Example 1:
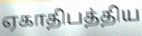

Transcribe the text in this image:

ஏகாதிபத்திய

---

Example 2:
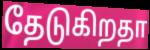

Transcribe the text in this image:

தேடுகிறதா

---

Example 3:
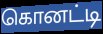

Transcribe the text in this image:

கொனட்டி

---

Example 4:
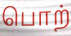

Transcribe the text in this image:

பொற்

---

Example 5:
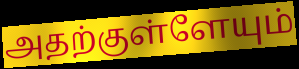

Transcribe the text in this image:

அதற்குள்ளேயும்